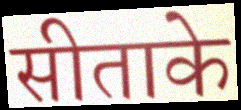
सीताके